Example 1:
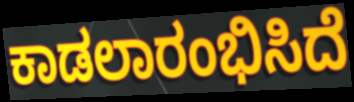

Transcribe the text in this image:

ಕಾಡಲಾರಂಭಿಸಿದೆ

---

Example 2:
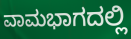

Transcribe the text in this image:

ವಾಮಭಾಗದಲ್ಲಿ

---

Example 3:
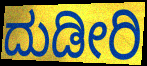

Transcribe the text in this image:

ದುಡೀರಿ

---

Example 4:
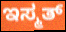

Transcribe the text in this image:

ಇಸ್ಮತ್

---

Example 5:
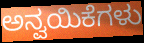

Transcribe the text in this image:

ಅನ್ವಯಿಕೆಗಳು